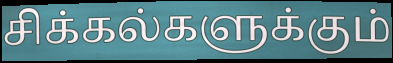
சிக்கல்களுக்கும்